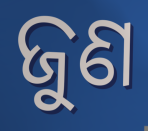
ଜୁଣ